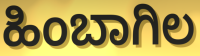
ಹಿಂಬಾಗಿಲ